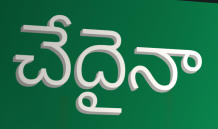
చేదైనా